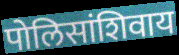
पोलिसांशिवाय